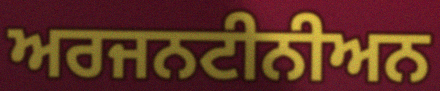
ਅਰਜਨਟੀਨੀਅਨ